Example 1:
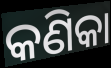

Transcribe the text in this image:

କଣିକା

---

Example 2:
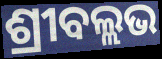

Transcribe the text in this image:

ଶ୍ରୀବଲ୍ଲଭ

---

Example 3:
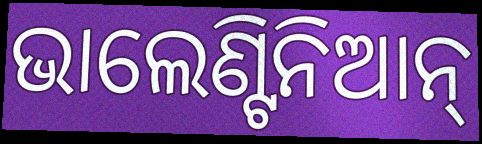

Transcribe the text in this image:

ଭାଲେଣ୍ଟିନିଆନ୍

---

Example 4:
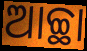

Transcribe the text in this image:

ଆଚ୍ଛା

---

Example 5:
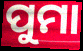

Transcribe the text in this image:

ପୁମା